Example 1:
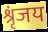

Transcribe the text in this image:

श्रृंजय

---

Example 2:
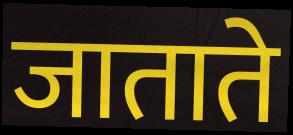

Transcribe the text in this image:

जाताते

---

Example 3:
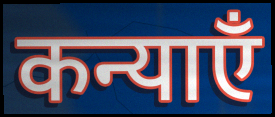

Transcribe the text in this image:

कन्याएँ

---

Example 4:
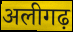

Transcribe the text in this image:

अलीगढ़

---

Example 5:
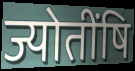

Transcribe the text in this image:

ज्योतींषि